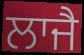
ਲਾਜੈ